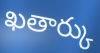
ఖతార్కు